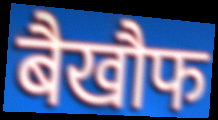
बैखौफ